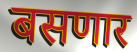
बसणार